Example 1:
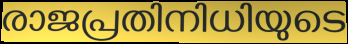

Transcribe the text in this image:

രാജപ്രതിനിധിയുടെ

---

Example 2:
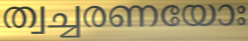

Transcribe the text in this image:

ത്വച്ചരണയോഃ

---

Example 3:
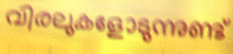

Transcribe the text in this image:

വിരലുകളോടുന്നുണ്ട്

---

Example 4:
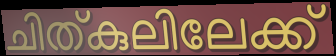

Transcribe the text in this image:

ചിത്കുലിലേക്ക്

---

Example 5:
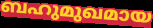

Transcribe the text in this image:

ബഹുമുഖമായ